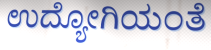
ಉದ್ಯೋಗಿಯಂತೆ